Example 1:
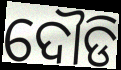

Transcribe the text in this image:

ଦୌଡି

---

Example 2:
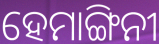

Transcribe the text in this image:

ହେମାଙ୍ଗିନୀ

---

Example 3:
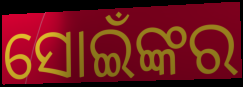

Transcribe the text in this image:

ସୋଇଁଙ୍କର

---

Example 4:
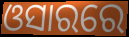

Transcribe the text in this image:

ଓସାରରେ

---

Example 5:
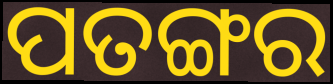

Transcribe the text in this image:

ପତଙ୍ଗର